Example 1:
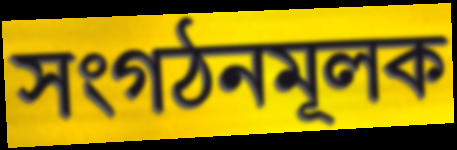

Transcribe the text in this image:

সংগঠনমূলক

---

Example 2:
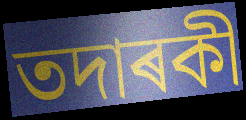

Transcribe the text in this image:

তদাৰকী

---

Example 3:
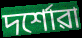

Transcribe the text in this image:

দৰ্শোৱা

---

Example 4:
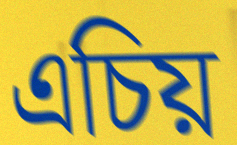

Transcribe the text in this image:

এচিয়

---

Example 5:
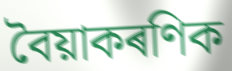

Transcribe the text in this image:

বৈয়াকৰণিক